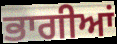
ਭਾਗੀਆਂ